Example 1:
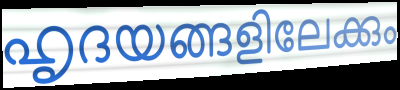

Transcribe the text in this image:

ഹൃദയങ്ങളിലേക്കും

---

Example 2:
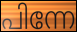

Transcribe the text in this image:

പിന്നേ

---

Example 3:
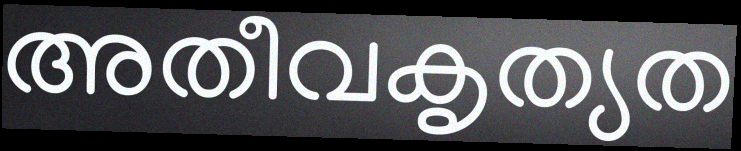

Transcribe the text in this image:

അതീവകൃത്യത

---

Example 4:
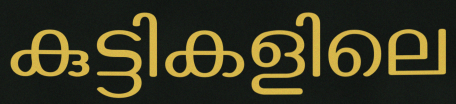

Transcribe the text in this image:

കുട്ടികളിലെ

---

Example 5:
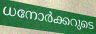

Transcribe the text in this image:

ധനോർക്കറുടെ